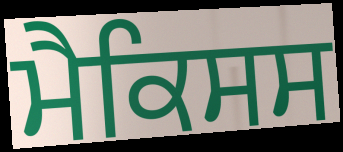
ਮੈਕਿਸਸ